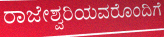
ರಾಜೇಶ್ವರಿಯವರೊಂದಿಗೆ